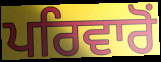
ਪਰਿਵਾਰੋਂ